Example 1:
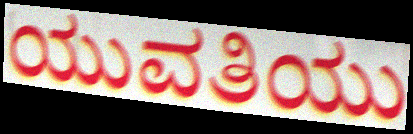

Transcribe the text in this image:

ಯುವತಿಯು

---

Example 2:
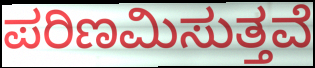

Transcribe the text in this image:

ಪರಿಣಮಿಸುತ್ತವೆ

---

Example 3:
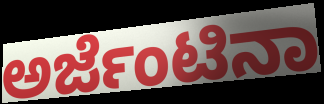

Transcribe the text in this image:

ಅರ್ಜೆಂಟಿನಾ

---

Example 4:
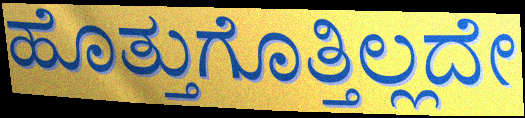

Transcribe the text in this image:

ಹೊತ್ತುಗೊತ್ತಿಲ್ಲದೇ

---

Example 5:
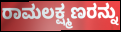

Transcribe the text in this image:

ರಾಮಲಕ್ಷ್ಮಣರನ್ನು